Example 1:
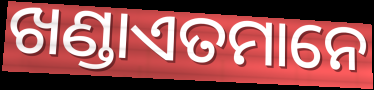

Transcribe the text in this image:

ଖଣ୍ଡାଏତମାନେ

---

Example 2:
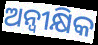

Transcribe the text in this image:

ଅନ୍ୱୀକ୍ଷିକ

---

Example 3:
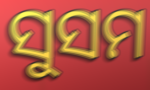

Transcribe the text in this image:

ସୁସମ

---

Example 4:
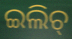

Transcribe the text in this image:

ଇଲିଚ୍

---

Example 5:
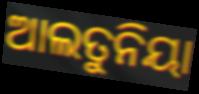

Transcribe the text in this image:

ଆଲତୁନିୟା